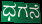
ಧಗನೆ